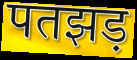
पतझड़